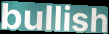
bullish